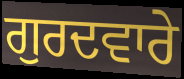
ਗੁਰਦਵਾਰੇ